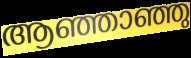
ആഞ്ഞാഞ്ഞു